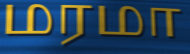
மரமா